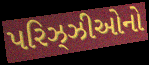
પરિઝ્ઝીઓનો